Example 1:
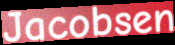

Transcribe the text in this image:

Jacobsen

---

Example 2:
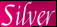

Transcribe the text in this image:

Silver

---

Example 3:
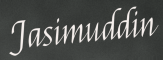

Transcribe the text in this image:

Jasimuddin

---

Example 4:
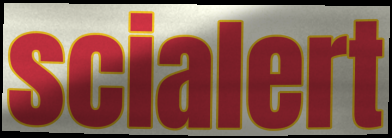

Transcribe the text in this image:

scialert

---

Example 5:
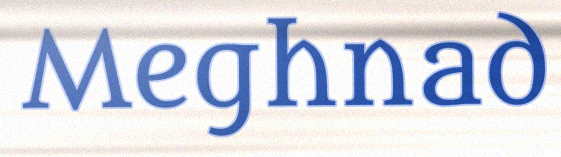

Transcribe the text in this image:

Meghnad